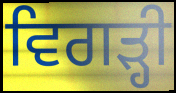
ਵਿਗੜ੍ਹੀ